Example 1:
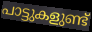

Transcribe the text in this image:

പാട്ടുകളുണ്ട്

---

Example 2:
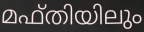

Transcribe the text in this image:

മഫ്തിയിലും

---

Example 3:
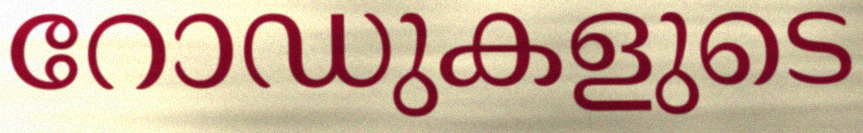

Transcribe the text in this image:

റോഡുകളുടെ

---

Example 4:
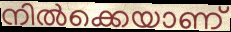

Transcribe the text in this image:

നിൽക്കെയാണ്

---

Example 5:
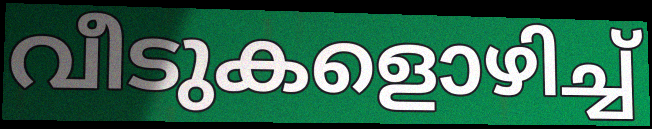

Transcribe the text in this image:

വീടുകളൊഴിച്ച്